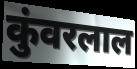
कुंवरलाल